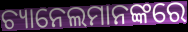
ଚ୍ୟାନେଲମାନଙ୍କରେ